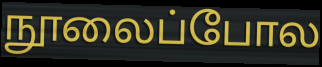
நூலைப்போல